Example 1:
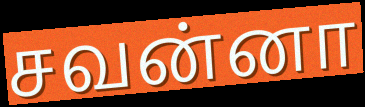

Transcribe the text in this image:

சவன்னா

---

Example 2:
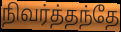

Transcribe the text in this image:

நிவர்த்தந்தே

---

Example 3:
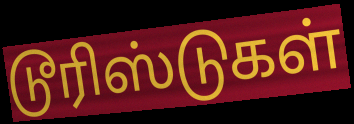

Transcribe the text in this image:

டூரிஸ்டுகள்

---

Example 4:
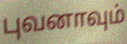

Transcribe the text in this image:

புவனாவும்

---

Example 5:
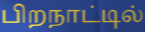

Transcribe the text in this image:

பிறநாட்டில்